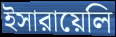
ইসারায়েলি